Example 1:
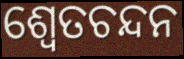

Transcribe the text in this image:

ଶ୍ୱେତଚନ୍ଦନ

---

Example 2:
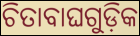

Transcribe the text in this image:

ଚିତାବାଘଗୁଡ଼ିକ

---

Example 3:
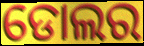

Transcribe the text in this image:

ଡୋଲର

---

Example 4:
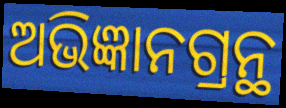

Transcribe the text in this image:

ଅଭିଜ୍ଞାନଗ୍ରନ୍ଥ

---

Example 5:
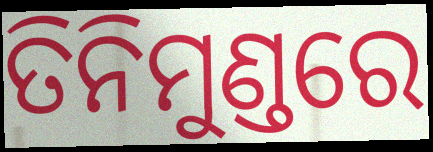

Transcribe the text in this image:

ତିନିମୁଣ୍ଡରେ